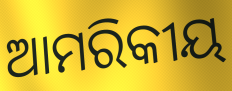
ଆମରିକୀୟ